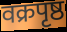
वक्रपृष्ठ